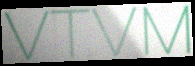
VTVM